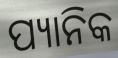
ପ୍ୟାନିକ